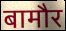
बामौर